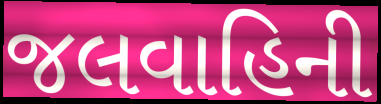
જલવાહિની